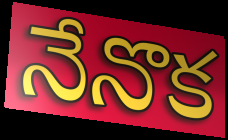
నేనొక